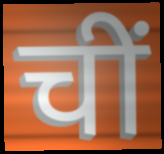
चीं